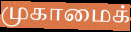
முகாமைக்